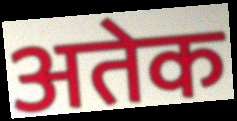
अतेक